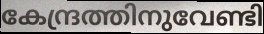
കേന്ദ്രത്തിനുവേണ്ടി